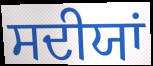
ਸਦੀਯਾਂ